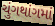
ચુંગથાંગમાં